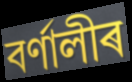
বৰ্ণালীৰ